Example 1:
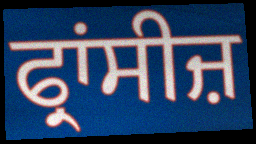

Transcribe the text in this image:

ਫ੍ਰਾਂਸੀਜ਼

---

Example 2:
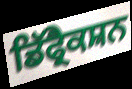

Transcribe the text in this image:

ਡਿੱਫ੍ਰੈਕਸ਼ਨ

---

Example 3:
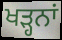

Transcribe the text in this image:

ਖੜ੍ਹਨਾਂ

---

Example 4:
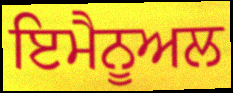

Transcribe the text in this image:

ਇਮੈਨੂਅਲ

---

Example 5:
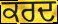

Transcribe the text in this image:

ਕਰਦ